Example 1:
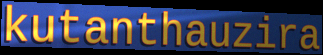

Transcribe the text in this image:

kutanthauzira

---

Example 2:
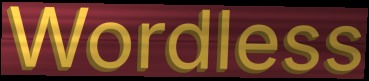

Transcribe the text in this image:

Wordless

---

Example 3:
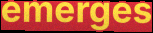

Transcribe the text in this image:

emerges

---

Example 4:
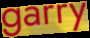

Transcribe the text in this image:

garry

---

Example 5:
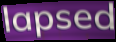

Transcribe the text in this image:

lapsed